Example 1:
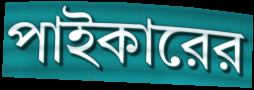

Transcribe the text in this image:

পাইকারের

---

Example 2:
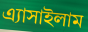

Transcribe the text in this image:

এ্যাসাইলাম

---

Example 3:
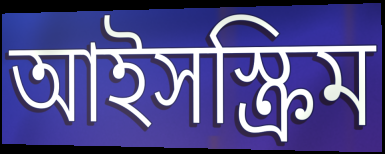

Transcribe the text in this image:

আইসস্ক্রিম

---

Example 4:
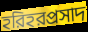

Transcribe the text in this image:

হরিহরপ্রসাদ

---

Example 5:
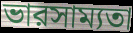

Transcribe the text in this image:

ভারসাম্যতা